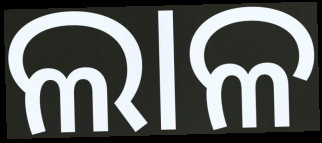
ଲାଳ